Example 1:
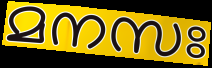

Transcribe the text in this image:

മനസഃ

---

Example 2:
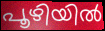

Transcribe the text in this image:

പൂഴിയിൽ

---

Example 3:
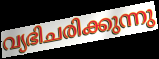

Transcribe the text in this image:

വ്യഭിചരിക്കുന്നു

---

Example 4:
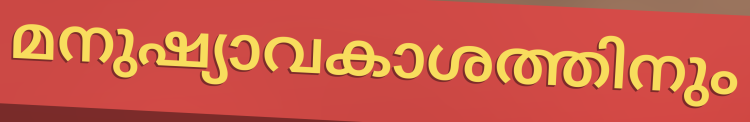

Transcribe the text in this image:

മനുഷ്യാവകാശത്തിനും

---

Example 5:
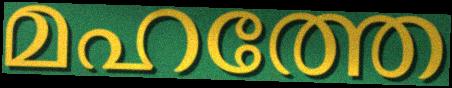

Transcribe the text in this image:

മഹത്തേ